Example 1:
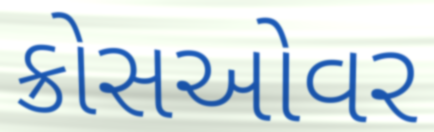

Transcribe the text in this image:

ક્રોસઓવર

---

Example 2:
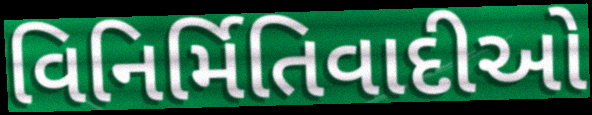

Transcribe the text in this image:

વિનિર્મિતિવાદીઓ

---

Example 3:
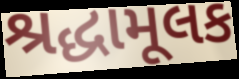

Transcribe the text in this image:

શ્રદ્ધામૂલક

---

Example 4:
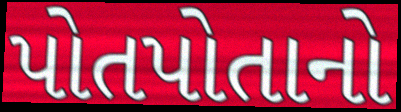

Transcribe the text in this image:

પોતપોતાનો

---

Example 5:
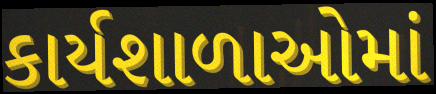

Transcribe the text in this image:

કાર્યશાળાઓમાં